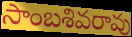
సాంబశివరావు